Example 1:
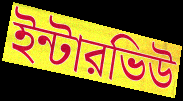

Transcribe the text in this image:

ইন্টারভিউ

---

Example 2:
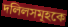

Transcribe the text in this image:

দলিলসমূহকে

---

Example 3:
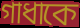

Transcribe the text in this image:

গাধাকে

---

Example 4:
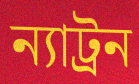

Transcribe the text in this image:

ন্যাট্রন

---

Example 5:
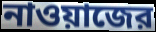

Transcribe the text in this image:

নাওয়াজের